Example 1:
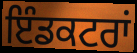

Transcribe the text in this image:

ਇੰਡਕਟਰਾਂ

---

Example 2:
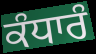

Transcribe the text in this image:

ਕੰਧਾਰੰ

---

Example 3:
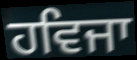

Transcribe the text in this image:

ਹਵਿਜਾ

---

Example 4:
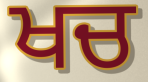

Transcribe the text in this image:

ਖਚ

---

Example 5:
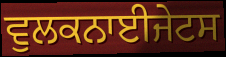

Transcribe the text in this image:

ਵੁਲਕਨਾਈਜੇਟਸ